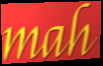
mah